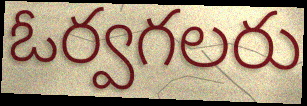
ఓర్వగలరు